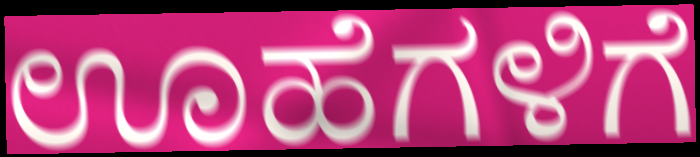
ಊಹೆಗಳಿಗೆ